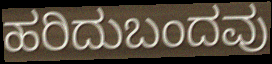
ಹರಿದುಬಂದವು